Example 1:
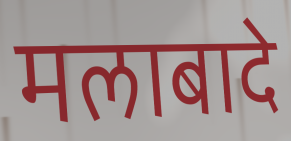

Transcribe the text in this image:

मलाबादे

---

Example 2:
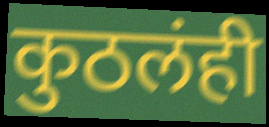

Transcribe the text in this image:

कुठलंही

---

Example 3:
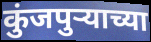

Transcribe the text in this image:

कुंजपुऱ्याच्या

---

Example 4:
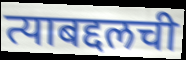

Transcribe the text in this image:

त्याबद्दलची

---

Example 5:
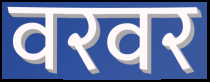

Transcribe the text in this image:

वरवर